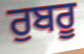
ਰੁਬਰੂ